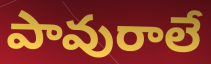
పావురాలే